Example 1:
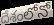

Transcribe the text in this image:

దేశంలోనో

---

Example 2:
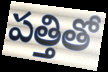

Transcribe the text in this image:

పత్తితో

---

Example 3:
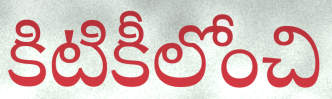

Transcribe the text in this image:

కిటికీలోంచి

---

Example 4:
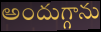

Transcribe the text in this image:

అందుగ్గాను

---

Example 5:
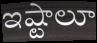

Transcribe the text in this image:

ఇష్టాలూ